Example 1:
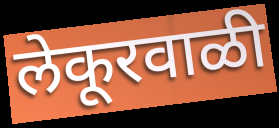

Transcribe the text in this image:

लेकूरवाळी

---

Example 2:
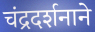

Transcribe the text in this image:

चंद्रदर्शनाने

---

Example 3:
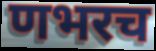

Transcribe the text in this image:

णभरच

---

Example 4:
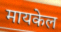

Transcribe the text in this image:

मायकेल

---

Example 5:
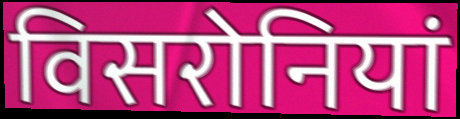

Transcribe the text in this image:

विसरोनियां